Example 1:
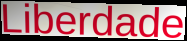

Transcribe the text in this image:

Liberdade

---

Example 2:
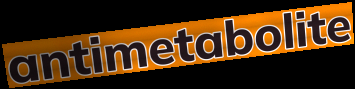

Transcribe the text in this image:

antimetabolite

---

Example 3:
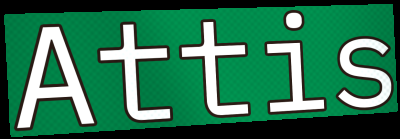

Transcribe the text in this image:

Attis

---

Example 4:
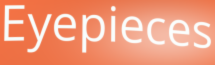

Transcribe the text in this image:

Eyepieces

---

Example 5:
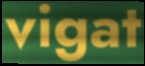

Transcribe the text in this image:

vigat